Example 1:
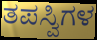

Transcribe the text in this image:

ತಪಸ್ವಿಗಳ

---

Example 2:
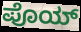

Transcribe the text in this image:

ಪೊಯ್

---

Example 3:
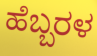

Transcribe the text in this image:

ಹೆಬ್ಬರಳ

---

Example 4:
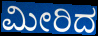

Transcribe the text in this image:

ಮೀರಿದ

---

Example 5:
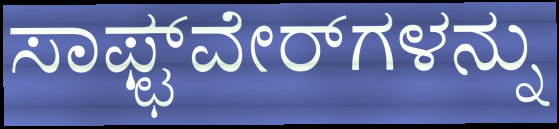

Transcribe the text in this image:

ಸಾಫ್ಟ್‌ವೇರ್‌ಗಳನ್ನು